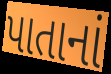
પાતાનાં